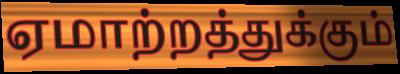
ஏமாற்றத்துக்கும்